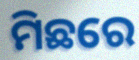
ମିଛରେ